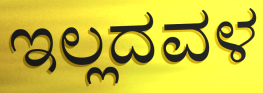
ಇಲ್ಲದವಳ